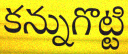
కన్నుగొట్టి